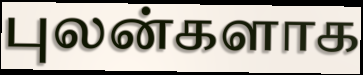
புலன்களாக